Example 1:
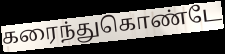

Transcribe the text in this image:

கரைந்துகொண்டே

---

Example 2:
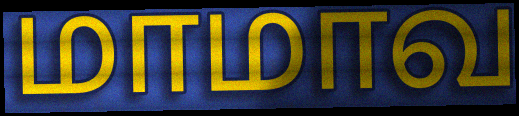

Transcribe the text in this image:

மாமாவ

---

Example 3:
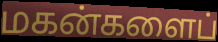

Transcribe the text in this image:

மகன்களைப்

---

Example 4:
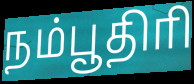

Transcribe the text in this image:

நம்பூதிரி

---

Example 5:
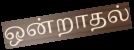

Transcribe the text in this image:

ஒன்றாதல்